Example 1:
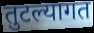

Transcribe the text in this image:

तुटल्यागत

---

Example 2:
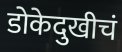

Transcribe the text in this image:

डोकेदुखीचं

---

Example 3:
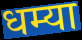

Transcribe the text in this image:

धम्या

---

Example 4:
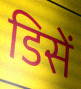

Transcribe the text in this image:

डिसें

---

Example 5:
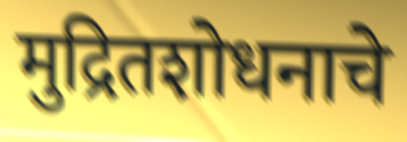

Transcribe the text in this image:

मुद्रितशोधनाचे